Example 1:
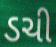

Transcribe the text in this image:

ડચી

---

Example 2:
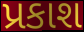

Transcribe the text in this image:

પ્રકાશ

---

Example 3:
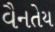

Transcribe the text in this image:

વૈનતેય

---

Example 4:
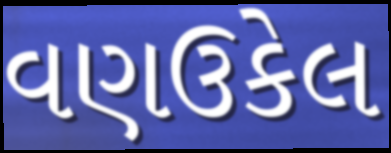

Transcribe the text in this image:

વણઉકેલ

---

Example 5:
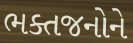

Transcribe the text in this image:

ભક્તજનોને